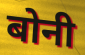
बोनी